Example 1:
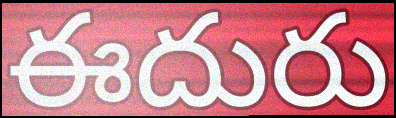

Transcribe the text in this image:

ఈదురు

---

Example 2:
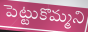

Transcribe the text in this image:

పెట్టుకొమ్మని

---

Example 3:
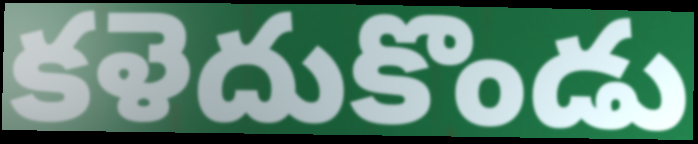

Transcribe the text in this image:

కళెదుకొండు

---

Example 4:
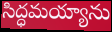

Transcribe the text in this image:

సిద్ధమయ్యాను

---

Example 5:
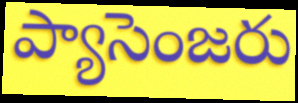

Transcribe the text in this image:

ప్యాసెంజరు